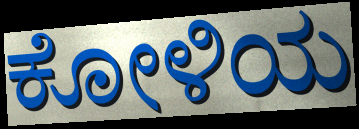
ಕೋಳಿಯ